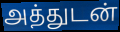
அத்துடன்